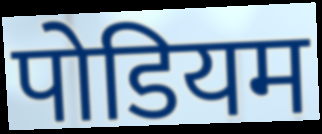
पोडियम